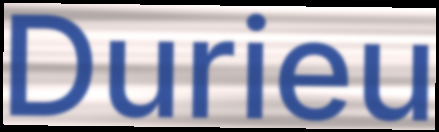
Durieu